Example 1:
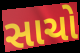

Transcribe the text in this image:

સાચો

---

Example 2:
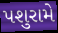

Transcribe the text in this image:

પશુરામે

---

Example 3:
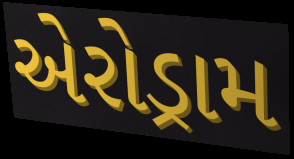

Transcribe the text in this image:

એરોડ્રામ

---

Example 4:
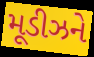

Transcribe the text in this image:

મૂડીઝને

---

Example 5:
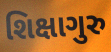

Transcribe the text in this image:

શિક્ષાગુરુ